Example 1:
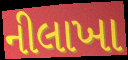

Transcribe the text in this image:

નીલાખા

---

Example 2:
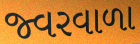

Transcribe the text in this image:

જ્વરવાળા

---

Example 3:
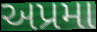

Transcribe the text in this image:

અપ્રમા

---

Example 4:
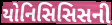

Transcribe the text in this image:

યોનિસિસિસની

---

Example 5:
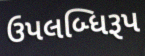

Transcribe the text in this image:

ઉપલબ્ધિરૂપ